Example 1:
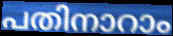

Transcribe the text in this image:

പതിനാറാം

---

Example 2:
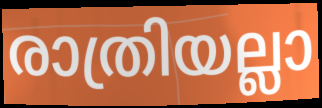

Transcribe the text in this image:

രാത്രിയല്ലാ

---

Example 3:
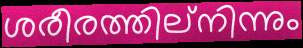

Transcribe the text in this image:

ശരീരത്തില്നിന്നും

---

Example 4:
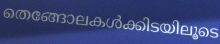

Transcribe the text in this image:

തെങ്ങോലകൾക്കിടയിലൂടെ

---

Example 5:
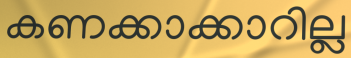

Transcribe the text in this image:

കണക്കാക്കാറില്ല